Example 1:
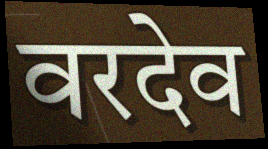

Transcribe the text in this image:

वरदेव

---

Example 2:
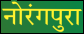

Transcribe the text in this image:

नोरंगपुरा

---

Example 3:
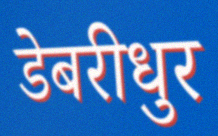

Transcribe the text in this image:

डेबरीधुर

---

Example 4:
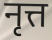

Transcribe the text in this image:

नृत्त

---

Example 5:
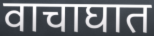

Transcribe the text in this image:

वाचाघात